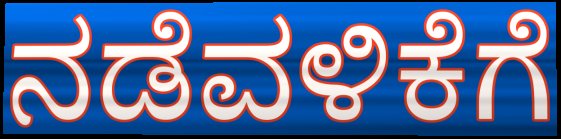
ನಡೆವಳಿಕೆಗೆ